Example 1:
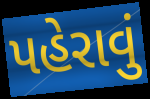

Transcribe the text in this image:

પહેરાવું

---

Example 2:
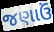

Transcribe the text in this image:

જણાઉં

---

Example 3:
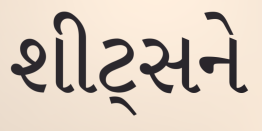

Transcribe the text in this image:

શીટ્સને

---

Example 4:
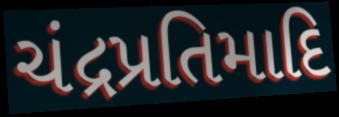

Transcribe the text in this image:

ચંદ્રપ્રતિમાદિ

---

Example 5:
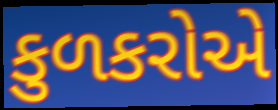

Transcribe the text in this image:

કુળકરોએ